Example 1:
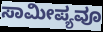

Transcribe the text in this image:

ಸಾಮೀಪ್ಯವೂ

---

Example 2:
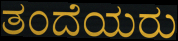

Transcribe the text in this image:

ತಂದೆಯರು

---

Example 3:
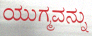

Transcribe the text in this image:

ಯುಗ್ಮವನ್ನು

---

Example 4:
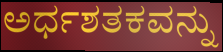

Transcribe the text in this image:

ಅರ್ಧಶತಕವನ್ನು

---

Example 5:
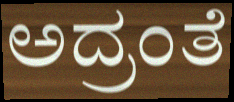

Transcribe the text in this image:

ಅದ್ರಂತೆ